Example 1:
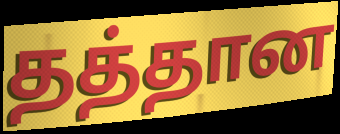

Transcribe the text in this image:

தத்தான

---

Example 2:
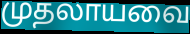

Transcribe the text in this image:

முதலாயவை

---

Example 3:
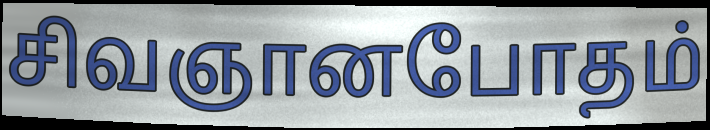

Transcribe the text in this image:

சிவஞானபோதம்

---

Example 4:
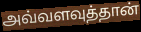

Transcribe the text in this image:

அவ்வளவுத்தான்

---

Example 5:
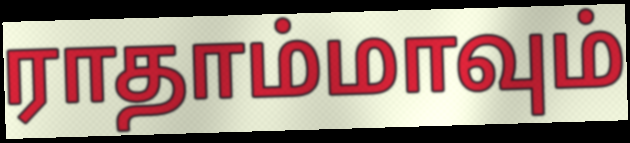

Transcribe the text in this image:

ராதாம்மாவும்